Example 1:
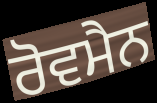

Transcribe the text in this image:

ਰੋਵਮੈਨ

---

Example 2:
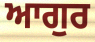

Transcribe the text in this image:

ਆਗੁਰ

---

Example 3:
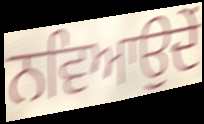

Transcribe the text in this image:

ਨਵਿਆਉਦੇਂ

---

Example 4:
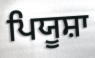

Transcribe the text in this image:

ਪਿਯੂਸ਼ਾ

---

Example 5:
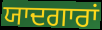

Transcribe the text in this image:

ਯਾਦਗਾਰਾਂ